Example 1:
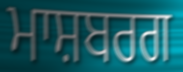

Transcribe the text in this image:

ਮਾਸ਼ਬਰਗ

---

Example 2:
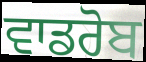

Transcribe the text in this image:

ਵਾਡਰੋਬ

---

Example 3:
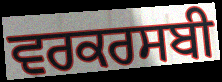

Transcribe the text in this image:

ਵਰਕਰਸਬੀ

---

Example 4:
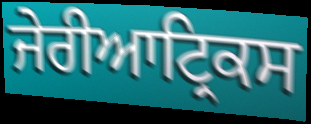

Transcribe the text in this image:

ਜੇਰੀਆਟ੍ਰਿਕਸ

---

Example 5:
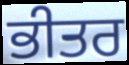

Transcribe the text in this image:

ਭੀਤਰ